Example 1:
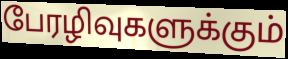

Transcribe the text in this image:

பேரழிவுகளுக்கும்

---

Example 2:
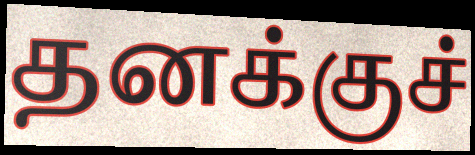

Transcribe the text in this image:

தனக்குச்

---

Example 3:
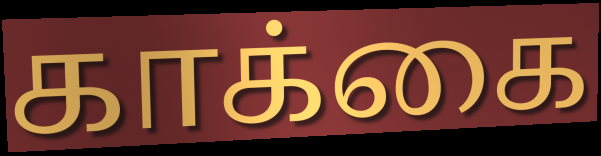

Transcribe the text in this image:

காக்கை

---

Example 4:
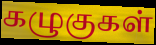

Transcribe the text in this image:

கழுகுகள்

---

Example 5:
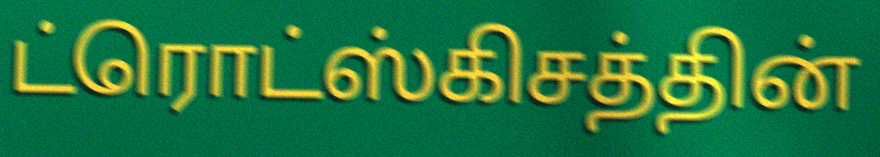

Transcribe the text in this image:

ட்ரொட்ஸ்கிசத்தின்